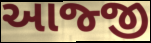
આજ્જી